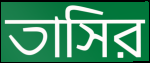
তাসির